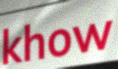
khow